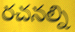
రచనల్ని